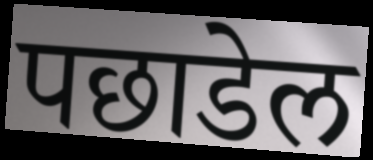
पछाडेल